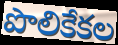
పొలికేకల